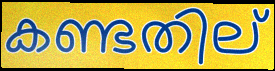
കണ്ടതില്